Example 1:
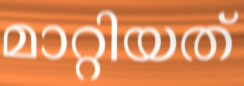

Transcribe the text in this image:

മാറ്റിയത്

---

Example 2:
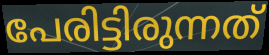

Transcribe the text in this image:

പേരിട്ടിരുന്നത്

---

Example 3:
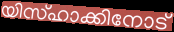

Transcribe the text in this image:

യിസ്ഹാക്കിനോട്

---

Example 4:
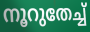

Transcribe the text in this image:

നൂറുതേച്ച്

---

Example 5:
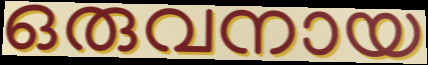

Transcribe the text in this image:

ഒരുവനായ